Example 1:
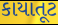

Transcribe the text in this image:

કાયાતૂટ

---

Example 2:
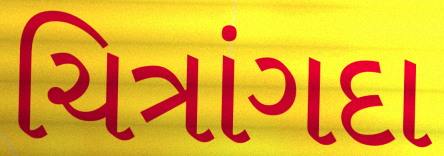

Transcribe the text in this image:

ચિત્રાંગદા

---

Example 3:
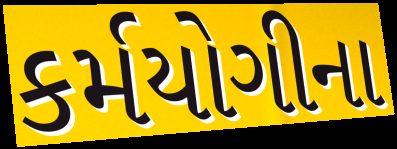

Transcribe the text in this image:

કર્મયોગીના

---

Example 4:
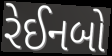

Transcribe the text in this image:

રેઈનબો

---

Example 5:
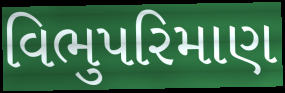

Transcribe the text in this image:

વિભુપરિમાણ